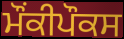
ਮੌਂਕੀਪੌਕਸ